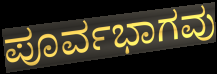
ಪೂರ್ವಭಾಗವು